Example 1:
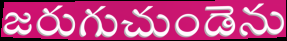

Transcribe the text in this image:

జరుగుచుండెను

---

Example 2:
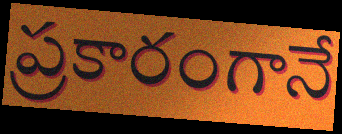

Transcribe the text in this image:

ప్రకారంగానే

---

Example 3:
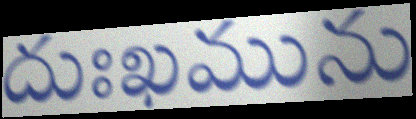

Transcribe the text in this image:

దుఃఖమును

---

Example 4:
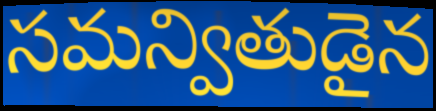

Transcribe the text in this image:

సమన్వితుడైన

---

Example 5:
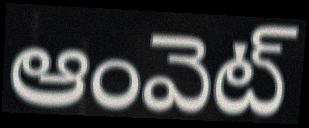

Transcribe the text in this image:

ఆంవెట్